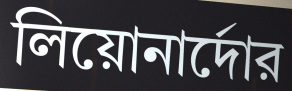
লিয়োনার্দোর